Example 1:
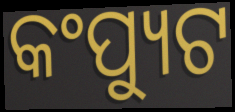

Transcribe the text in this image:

କଂପ୍ୟୁଟ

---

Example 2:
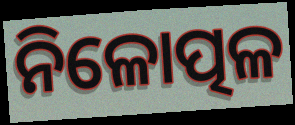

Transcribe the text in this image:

ନିଳୋତ୍ପଳ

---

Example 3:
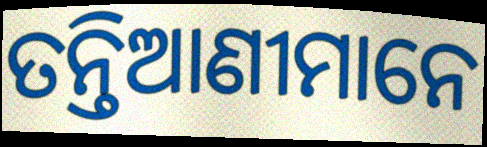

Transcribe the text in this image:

ତନ୍ତିଆଣୀମାନେ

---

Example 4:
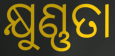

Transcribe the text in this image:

କ୍ଷୁଣ୍ଣତା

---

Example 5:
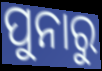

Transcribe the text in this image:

ପୁନାରୁ